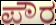
ಪೌರ